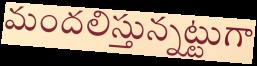
మందలిస్తున్నట్టుగా